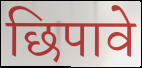
छिपावे